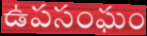
ఉపసంఘం